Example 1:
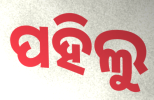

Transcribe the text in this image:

ପହିଲୁ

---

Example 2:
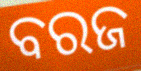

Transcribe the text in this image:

ବରଜ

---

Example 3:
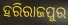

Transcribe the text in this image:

ହରିରାଜପୁର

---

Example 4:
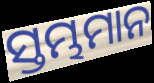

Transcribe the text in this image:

ସ୍ତମ୍ଭମାନ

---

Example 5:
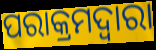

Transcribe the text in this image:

ପରାକ୍ରମଦ୍ୱାରା